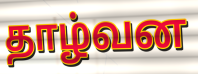
தாழ்வன